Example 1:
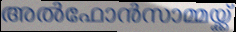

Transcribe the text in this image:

അൽഫോൻസാമ്മയ്ക്ക്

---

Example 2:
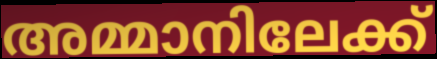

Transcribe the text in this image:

അമ്മാനിലേക്ക്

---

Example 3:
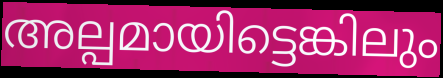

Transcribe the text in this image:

അല്പമായിട്ടെങ്കിലും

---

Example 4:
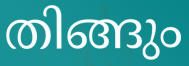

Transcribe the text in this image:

തിങ്ങും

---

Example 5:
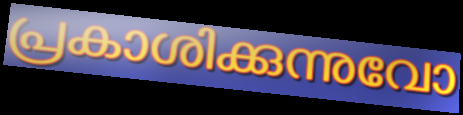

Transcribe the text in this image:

പ്രകാശിക്കുന്നുവോ